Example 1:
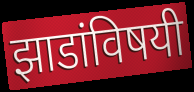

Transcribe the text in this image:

झाडांविषयी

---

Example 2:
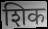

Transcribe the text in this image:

शिक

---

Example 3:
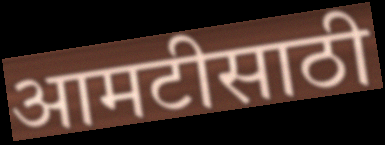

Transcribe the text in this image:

आमटीसाठी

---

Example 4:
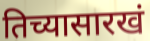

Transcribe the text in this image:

तिच्यासारखं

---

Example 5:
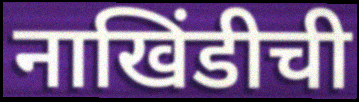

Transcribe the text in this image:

नाखिंडीची